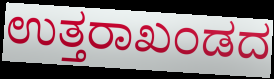
ಉತ್ತರಾಖಂಡದ